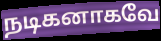
நடிகனாகவே